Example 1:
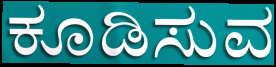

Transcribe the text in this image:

ಕೂಡಿಸುವ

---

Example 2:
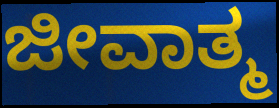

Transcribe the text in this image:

ಜೀವಾತ್ಮ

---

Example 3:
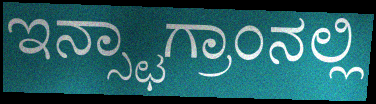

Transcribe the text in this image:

ಇನ್ಸ್ಟಾಗ್ರಾಂನಲ್ಲಿ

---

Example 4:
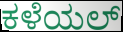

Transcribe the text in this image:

ಕಳೆಯಲ್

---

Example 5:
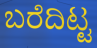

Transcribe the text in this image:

ಬರೆದಿಟ್ಟ